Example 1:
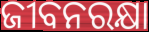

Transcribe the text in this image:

ଜୀବନରକ୍ଷା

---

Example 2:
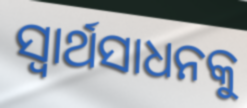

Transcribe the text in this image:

ସ୍ଵାର୍ଥସାଧନକୁ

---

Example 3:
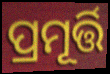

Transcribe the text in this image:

ପ୍ରମୂର୍ତ୍ତି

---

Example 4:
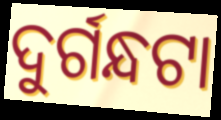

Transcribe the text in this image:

ଦୁର୍ଗନ୍ଧଟା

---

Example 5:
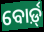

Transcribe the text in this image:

ବୋର୍ଡ଼୍